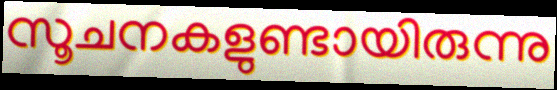
സൂചനകളുണ്ടായിരുന്നു